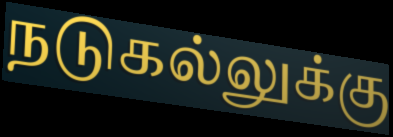
நடுகல்லுக்கு